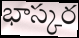
భాస్కర